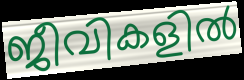
ജീവികളിൽ